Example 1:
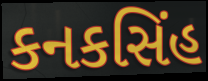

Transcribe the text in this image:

કનકસિંહ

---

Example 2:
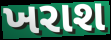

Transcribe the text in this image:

ખરાશ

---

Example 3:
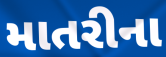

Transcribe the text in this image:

માતરીના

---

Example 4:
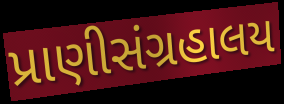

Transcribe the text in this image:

પ્રાણીસંગ્રહાલય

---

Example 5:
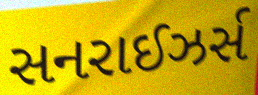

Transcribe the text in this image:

સનરાઈઝર્સ